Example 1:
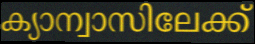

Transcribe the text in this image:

ക്യാന്വാസിലേക്ക്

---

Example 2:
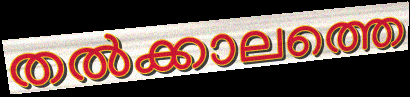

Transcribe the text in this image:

തൽക്കാലത്തെ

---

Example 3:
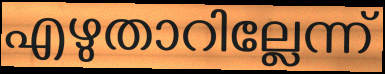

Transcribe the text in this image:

എഴുതാറില്ലേന്ന്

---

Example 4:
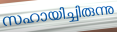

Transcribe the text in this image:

സഹായിച്ചിരുന്നു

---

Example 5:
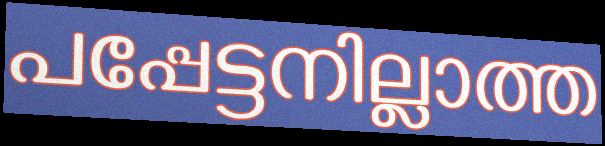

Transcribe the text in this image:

പപ്പേട്ടനില്ലാത്ത